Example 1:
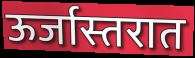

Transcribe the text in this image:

ऊर्जास्तरात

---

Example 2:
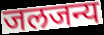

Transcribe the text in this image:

जलजन्य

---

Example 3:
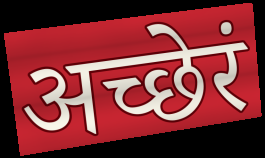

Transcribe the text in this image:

अच्छेरं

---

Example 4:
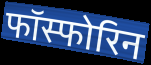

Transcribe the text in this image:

फॉस्फोरिन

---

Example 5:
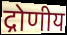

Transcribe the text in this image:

द्रोणीय